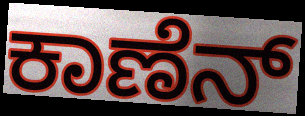
ಕಾಣೆನ್